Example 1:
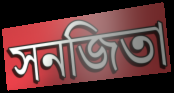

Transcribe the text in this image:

সনজিতা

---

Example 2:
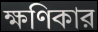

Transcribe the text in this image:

ক্ষণিকার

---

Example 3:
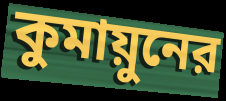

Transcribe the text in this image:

কুমায়ুনের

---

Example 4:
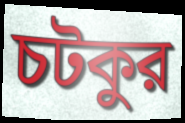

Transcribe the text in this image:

চটকুর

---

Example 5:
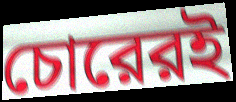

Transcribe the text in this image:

চোরেরই